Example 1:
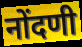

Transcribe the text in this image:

नोंदणी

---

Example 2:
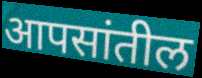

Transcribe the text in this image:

आपसांतील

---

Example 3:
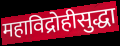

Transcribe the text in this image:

महाविद्रोहीसुद्धा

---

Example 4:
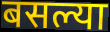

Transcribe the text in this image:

बसल्या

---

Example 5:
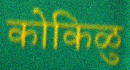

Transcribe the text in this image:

कोकिळु